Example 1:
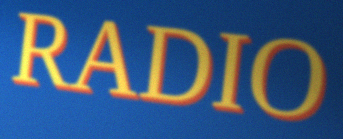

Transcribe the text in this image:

RADIO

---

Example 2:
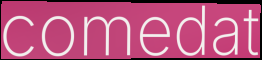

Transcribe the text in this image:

comedat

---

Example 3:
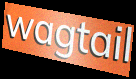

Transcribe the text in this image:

wagtail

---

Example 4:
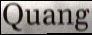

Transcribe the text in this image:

Quang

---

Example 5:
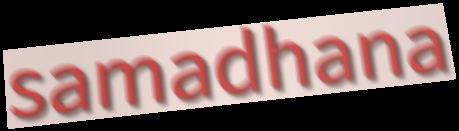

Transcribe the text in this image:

samadhana